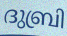
ദുബ്രി